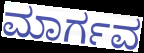
ಮಾರ್ಗವ